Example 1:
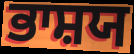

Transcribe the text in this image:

ਭਾਸ਼ਯ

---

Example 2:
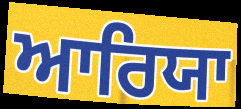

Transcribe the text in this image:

ਆਰਿਯਾ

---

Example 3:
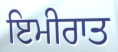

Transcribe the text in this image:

ਇਮੀਰਾਤ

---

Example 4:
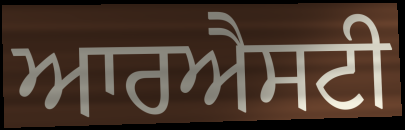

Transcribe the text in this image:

ਆਰਐਸਟੀ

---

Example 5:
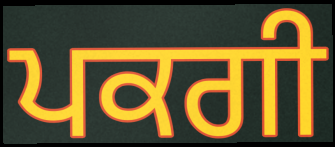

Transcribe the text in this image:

ਪਕਗੀ